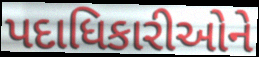
પદાધિકારીઓને